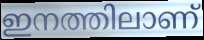
ഇനത്തിലാണ്